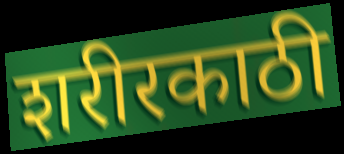
शरीरकाठी